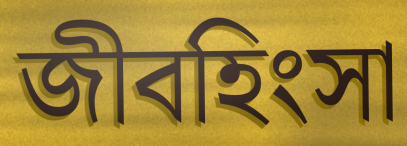
জীবহিংসা